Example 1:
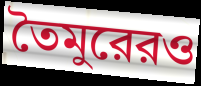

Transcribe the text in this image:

তৈমুরেরও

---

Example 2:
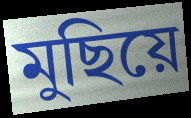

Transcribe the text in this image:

মুছিয়ে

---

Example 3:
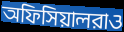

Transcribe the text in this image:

অফিসিয়ালরাও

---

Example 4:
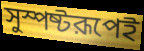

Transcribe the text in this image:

সুস্পষ্টরূপেই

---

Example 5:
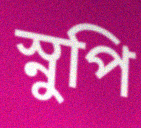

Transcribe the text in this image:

স্নুপি